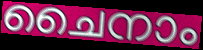
ചൈനാം